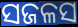
ସଜଳସ